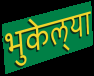
भुकेल्या